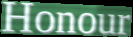
Honour